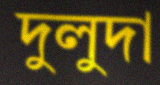
দুলুদা